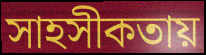
সাহসীকতায়